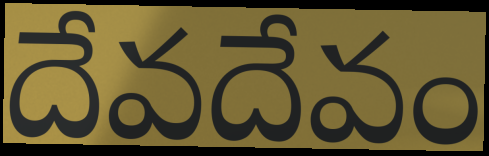
దేవదేవం